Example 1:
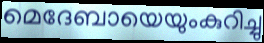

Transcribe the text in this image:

മെദേബായെയുംകുറിച്ചു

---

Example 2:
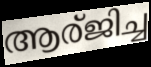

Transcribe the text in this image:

ആര്ജിച്ച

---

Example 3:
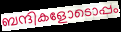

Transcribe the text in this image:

ബന്ദികളോടൊപ്പം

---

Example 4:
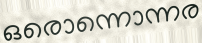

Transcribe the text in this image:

ഒരൊന്നൊന്നര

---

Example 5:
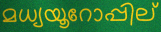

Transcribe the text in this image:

മധ്യയൂറോപ്പില്